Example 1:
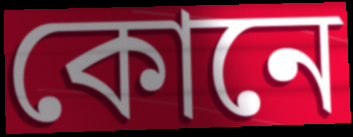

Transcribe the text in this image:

কোনে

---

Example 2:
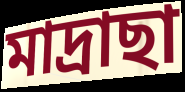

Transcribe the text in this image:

মাদ্ৰাছা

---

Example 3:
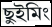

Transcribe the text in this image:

ছুইমিং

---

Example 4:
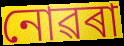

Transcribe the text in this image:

নোৱৰা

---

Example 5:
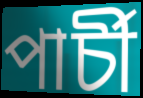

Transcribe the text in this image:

পাৰ্চী